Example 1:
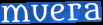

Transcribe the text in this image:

muera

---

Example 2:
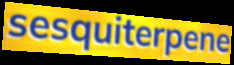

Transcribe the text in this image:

sesquiterpene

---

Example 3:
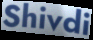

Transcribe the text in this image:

Shivdi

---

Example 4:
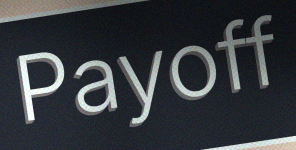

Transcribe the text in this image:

Payoff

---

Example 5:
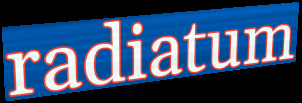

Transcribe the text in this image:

radiatum